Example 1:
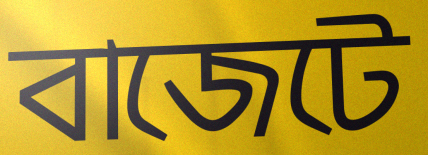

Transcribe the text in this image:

বাজেটে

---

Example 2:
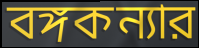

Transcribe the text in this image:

বঙ্গকন্যার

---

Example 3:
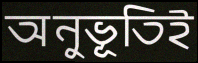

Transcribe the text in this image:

অনুভূতিই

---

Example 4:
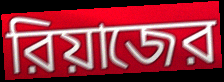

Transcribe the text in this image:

রিয়াজের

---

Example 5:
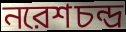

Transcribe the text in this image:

নরেশচন্দ্র